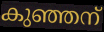
കുഞ്ഞന്